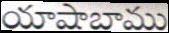
యాషాబాము